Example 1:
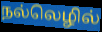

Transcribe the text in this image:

நல்லெழில்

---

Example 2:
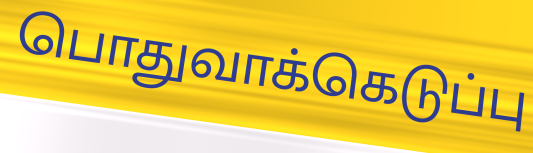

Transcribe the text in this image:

பொதுவாக்கெடுப்பு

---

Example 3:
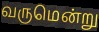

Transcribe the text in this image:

வருமென்று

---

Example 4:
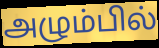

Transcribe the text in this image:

அழும்பில்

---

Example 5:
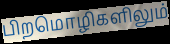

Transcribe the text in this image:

பிறமொழிகளிலும்